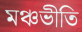
মঞ্চভীতি